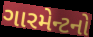
ગારમેન્ટનો